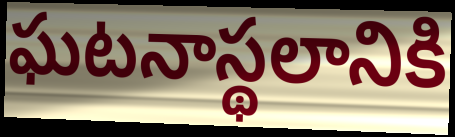
ఘటనాస్థలానికి